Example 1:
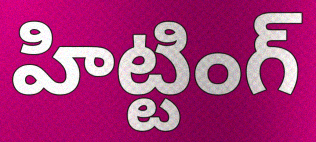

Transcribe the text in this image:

హిట్టింగ్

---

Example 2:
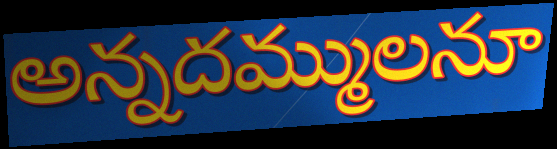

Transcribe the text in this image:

అన్నదమ్ములనూ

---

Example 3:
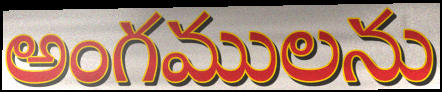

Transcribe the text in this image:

అంగములను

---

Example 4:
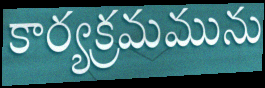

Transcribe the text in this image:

కార్యక్రమమును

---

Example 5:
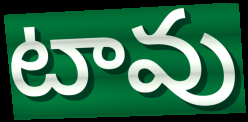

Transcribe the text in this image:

టావు